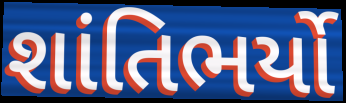
શાંતિભર્યો